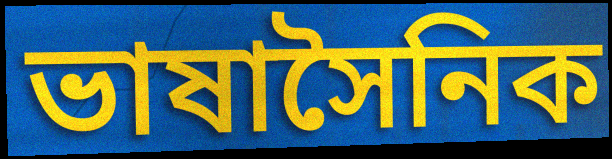
ভাষাসৈনিক